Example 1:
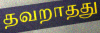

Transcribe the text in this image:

தவறாதது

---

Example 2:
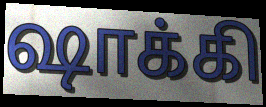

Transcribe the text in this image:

ஷாக்கி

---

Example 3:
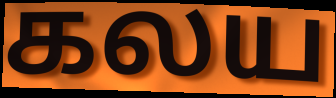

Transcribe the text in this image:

கலய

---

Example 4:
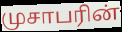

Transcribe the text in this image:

முசாபரின்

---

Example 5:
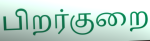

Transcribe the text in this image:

பிறர்குறை